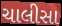
ચાલીસા